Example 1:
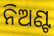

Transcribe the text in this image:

ନିଅଣ୍ଟ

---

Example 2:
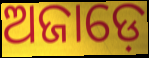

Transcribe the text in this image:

ଅଜାଡ଼େ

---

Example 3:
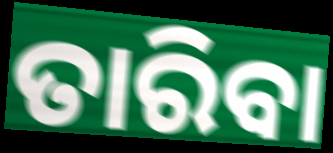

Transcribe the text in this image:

ତାରିବା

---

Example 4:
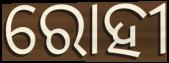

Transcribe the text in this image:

ରୋହୀ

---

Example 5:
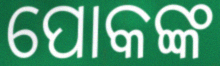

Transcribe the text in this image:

ପୋକଙ୍କ